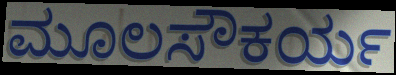
ಮೂಲಸೌಕರ್ಯ